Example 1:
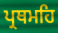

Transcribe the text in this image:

ਪ੍ਰਥਮਹਿ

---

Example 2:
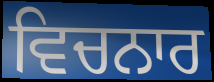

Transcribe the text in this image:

ਵਿਚਨਾਰ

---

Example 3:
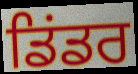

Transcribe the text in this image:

ਡਿਂਡਰ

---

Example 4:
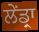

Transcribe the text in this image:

ਲੇਂਡ੍ਰਾ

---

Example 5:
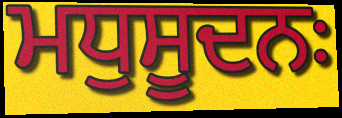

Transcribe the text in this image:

ਮਧੁਸੂਦਨਃ